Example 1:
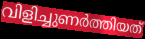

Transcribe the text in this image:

വിളിച്ചുണർത്തിയത്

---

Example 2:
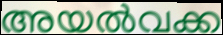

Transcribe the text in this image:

അയൽവക്ക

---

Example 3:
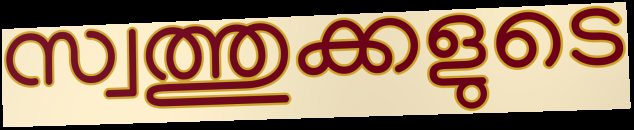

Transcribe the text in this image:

സ്വത്തുക്കളുടെ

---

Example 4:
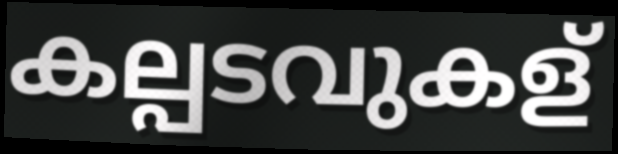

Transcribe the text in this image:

കല്പടവുകള്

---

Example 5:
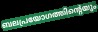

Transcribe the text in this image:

ബലപ്രയോഗത്തിന്റെയും